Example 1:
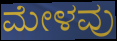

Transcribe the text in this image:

ಮೇಳವು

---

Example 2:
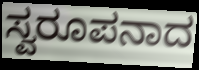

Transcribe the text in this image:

ಸ್ವರೂಪನಾದ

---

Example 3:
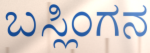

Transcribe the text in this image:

ಬಸ್ಲಿಂಗನ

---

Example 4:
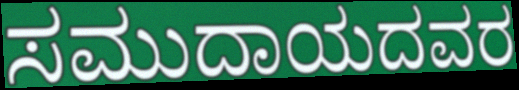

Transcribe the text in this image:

ಸಮುದಾಯದವರ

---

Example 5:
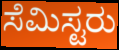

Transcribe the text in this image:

ಸೆಮಿಸ್ಟರು